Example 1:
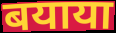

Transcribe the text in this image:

बयाया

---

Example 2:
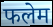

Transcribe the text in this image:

फलेम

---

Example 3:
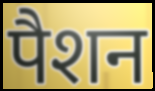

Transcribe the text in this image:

पैशन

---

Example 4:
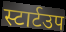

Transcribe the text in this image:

स्टार्टउप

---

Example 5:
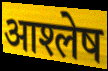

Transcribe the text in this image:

आश्लेष